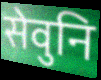
सेवुनि